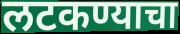
लटकण्याचा